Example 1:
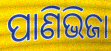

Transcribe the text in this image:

ପାଣିଭିଜା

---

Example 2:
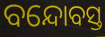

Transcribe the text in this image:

ବନ୍ଦୋବସ୍ତ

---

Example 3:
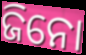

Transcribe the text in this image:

ଜିନୋ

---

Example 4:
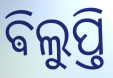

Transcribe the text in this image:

ଵିଲୁପ୍ତି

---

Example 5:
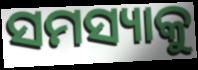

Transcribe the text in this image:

ସମସ୍ୟାକୁ